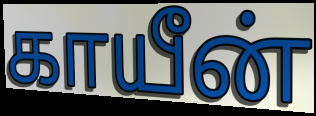
காயீன்